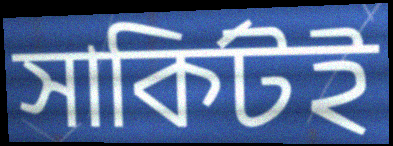
সার্কিটই